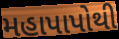
મહાપાપોથી